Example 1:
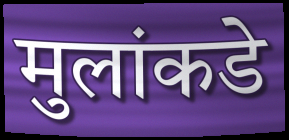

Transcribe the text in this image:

मुलांकडे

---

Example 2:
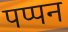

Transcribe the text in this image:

पप्पन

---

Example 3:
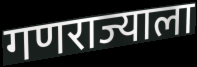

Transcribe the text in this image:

गणराज्याला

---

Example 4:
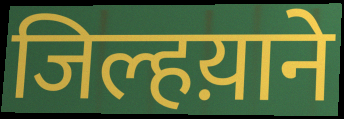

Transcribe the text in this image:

जिल्हय़ाने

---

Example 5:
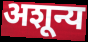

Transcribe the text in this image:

अशून्य